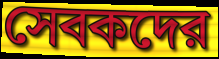
সেবকদের